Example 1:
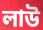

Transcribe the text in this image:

লাউ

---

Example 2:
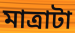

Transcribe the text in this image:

মাত্রাটা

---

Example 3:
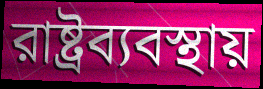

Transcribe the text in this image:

রাষ্ট্রব্যবস্থায়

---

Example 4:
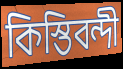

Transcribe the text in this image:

কিস্তিবন্দী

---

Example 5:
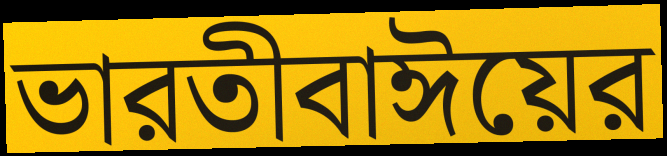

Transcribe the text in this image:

ভারতীবাঈয়ের